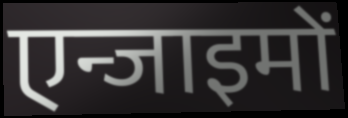
एन्जाइमों